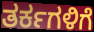
ತರ್ಕಗಳಿಗೆ